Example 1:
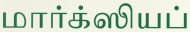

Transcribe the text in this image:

மார்க்ஸியப்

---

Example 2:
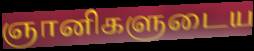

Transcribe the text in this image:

ஞானிகளுடைய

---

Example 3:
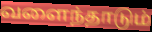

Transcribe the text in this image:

வளைந்தாடும்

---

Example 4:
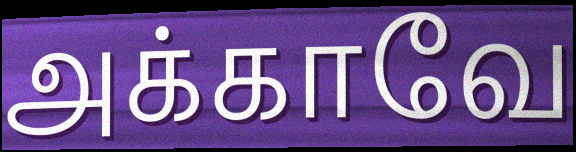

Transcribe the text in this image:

அக்காவே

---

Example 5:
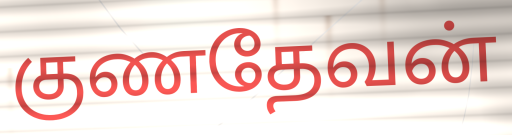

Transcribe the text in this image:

குணதேவன்